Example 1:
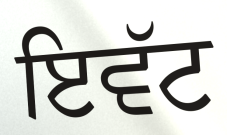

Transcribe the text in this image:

ਇਵੱਟ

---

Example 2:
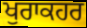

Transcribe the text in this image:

ਖੁਰਾਕਹਰ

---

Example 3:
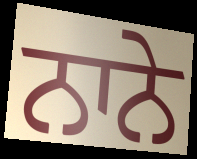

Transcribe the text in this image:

ਨਾਨੇ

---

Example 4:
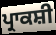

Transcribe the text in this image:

ਪ੍ਰਾਕਸ਼ੀ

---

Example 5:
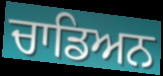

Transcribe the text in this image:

ਚਾਡਿਅਨ